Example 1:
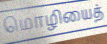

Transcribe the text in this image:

மொழியைத்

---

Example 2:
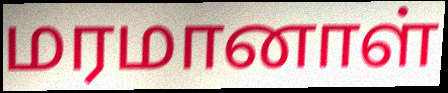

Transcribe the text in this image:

மரமானாள்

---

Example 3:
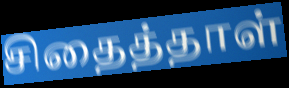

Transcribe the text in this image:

சிதைத்தாள்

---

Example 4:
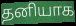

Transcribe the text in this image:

தனியாக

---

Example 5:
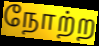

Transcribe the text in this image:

நோற்ற